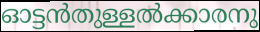
ഓട്ടൻതുള്ളൽക്കാരനു